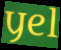
yel